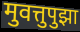
मुवत्तुपुझा